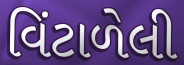
વિંટાળેલી